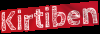
Kirtiben